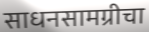
साधनसामग्रीचा